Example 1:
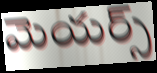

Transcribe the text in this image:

మెయర్స్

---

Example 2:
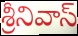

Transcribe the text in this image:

శ్రీనివాస్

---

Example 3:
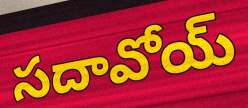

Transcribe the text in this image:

సదావోయ్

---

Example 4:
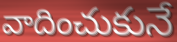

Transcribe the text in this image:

వాదించుకునే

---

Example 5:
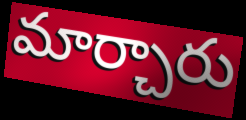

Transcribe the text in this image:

మార్చారు